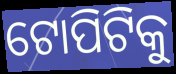
ଟୋପିଟିକୁ